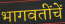
भागवतींचें